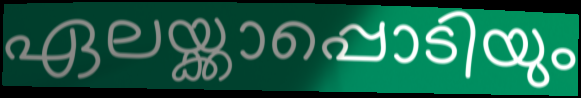
ഏലയ്ക്കാപ്പൊടിയും